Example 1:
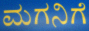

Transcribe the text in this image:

ಮಗನಿಗೆ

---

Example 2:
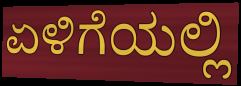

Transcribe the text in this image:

ಏಳಿಗೆಯಲ್ಲಿ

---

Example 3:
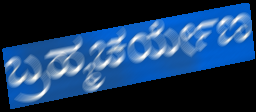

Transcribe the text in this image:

ಬ್ರಹ್ಮಚರ್ಯೇಣ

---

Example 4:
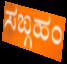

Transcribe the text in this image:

ಸಙ್ಗಹಂ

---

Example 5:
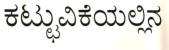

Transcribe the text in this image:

ಕಟ್ಟುವಿಕೆಯಲ್ಲಿನ